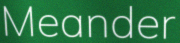
Meander